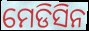
ମେଡିସିନ